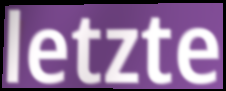
letzte